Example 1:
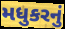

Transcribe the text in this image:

મધુકરનું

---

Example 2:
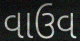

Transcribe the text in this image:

વાઉવ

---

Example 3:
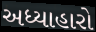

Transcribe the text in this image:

અધ્યાહારો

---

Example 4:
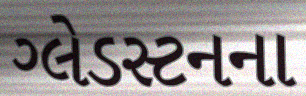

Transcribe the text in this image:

ગ્લેડસ્ટનના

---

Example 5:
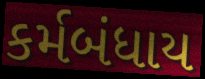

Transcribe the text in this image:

કર્મબંધાય